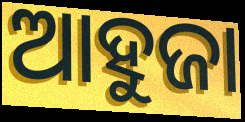
ଆହୁଜା